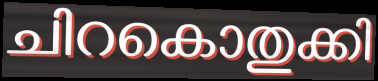
ചിറകൊതുക്കി